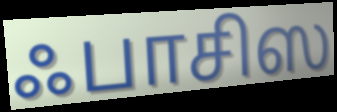
ஃபாசிஸ